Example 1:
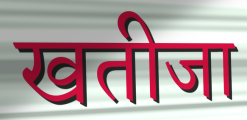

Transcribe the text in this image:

खतीजा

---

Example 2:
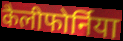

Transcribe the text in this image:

कैलीफोर्निया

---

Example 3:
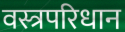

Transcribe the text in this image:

वस्त्रपरिधान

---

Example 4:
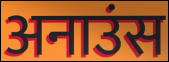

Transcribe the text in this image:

अनाउंस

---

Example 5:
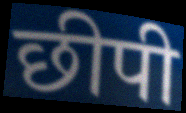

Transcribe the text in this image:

छीपी